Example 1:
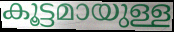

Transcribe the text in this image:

കൂട്ടമായുള്ള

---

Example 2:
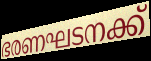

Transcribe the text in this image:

ഭരണഘടനക്ക്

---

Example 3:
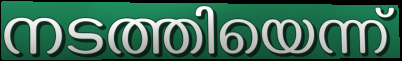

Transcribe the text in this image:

നടത്തിയെന്ന്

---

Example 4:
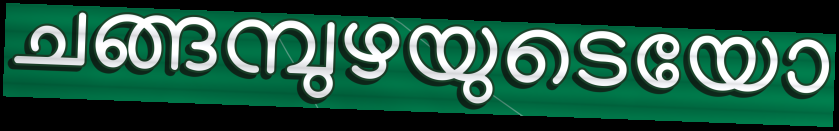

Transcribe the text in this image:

ചങ്ങമ്പുഴയുടെയോ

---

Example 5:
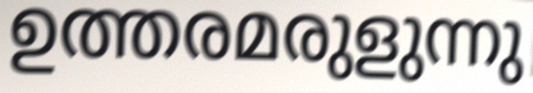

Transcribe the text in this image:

ഉത്തരമരുളുന്നു